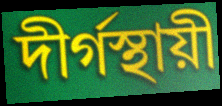
দীর্গস্থায়ী